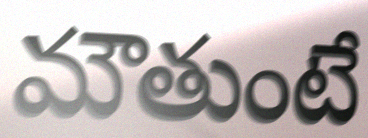
మౌతుంటే